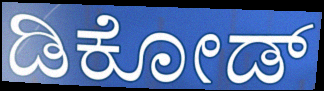
ಡಿಕೋಡ್